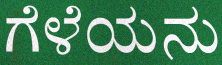
ಗೆಳೆಯನು